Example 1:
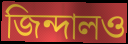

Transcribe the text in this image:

জিন্দালও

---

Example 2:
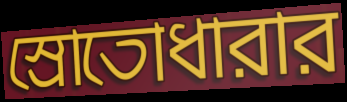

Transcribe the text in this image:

স্রোতোধারার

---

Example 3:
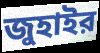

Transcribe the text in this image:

জুহাইর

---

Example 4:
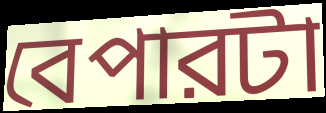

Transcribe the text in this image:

বেপারটা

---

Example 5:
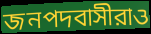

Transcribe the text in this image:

জনপদবাসীরাও